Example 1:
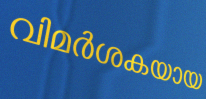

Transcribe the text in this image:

വിമർശകയായ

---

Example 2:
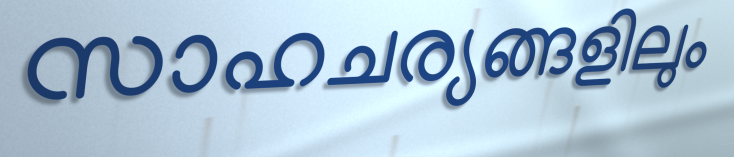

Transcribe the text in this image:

സാഹചര്യങ്ങളിലും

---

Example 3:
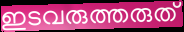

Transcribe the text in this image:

ഇടവരുത്തരുത്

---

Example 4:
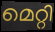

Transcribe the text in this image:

മെറ്റി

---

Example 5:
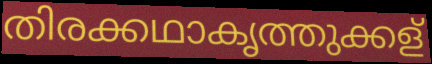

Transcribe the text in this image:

തിരക്കഥാകൃത്തുക്കള്